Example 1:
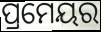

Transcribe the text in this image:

ପ୍ରମେୟର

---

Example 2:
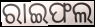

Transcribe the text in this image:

ରାଇଫଲ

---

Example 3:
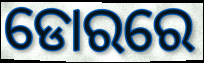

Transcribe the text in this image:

ଡୋରରେ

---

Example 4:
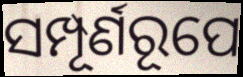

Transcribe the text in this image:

ସମ୍ପୂର୍ଣରୂପେ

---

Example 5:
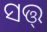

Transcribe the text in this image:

ସତ୍ତ୍